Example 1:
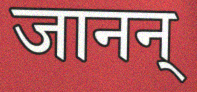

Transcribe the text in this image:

जानन्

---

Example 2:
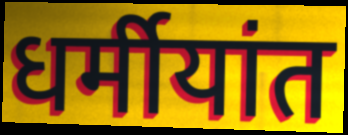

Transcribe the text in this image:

धर्मीयांत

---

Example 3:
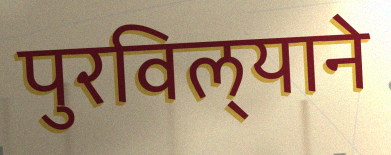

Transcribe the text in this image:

पुरविल्याने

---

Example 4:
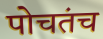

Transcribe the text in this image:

पोचतंच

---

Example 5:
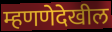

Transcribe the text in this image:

म्हणणेदेखील